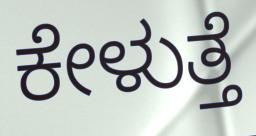
ಕೇಳುತ್ತೆ